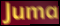
Juma